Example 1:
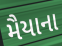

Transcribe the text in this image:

મૈયાના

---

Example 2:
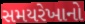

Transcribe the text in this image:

સમયરેખાનો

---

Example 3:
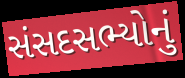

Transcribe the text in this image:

સંસદસભ્યોનું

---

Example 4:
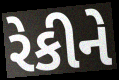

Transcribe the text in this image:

રેકીને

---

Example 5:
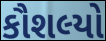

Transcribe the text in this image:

કૌશલ્યો